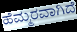
ಹೆಮ್ಮರವಾಗಿದೆ